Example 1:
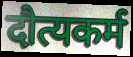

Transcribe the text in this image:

दौत्यकर्म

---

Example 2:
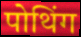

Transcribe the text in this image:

पोथिंग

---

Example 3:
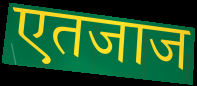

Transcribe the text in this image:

एतजाज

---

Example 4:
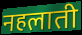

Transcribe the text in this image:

नहलाती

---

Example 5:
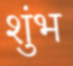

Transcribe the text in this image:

शुंभ